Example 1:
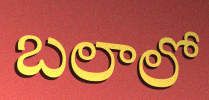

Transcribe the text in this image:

బలాలో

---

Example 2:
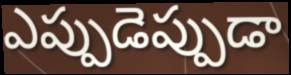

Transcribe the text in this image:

ఎప్పుడెప్పుడా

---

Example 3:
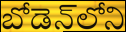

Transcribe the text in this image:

బోడెన్‌లోని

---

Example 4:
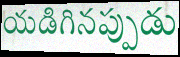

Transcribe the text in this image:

యడిగినప్పుడు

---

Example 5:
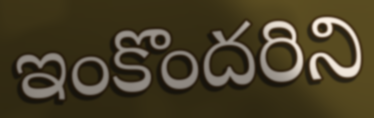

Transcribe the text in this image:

ఇంకొందరిని